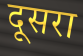
दूसरा